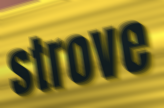
strove